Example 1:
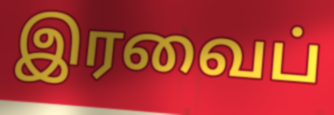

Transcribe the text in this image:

இரவைப்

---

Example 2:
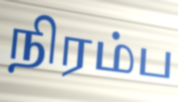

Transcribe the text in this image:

நிரம்ப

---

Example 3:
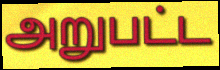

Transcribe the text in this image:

அறுபட்ட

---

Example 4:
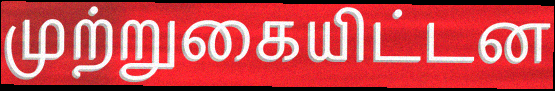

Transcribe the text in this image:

முற்றுகையிட்டன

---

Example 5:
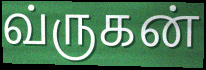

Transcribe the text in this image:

வ்ருகன்